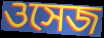
ওসেজ